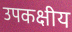
उपकक्षीय